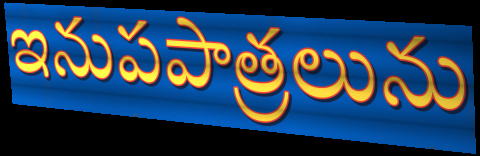
ఇనుపపాత్రలును